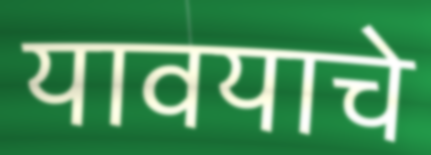
यावयाचे